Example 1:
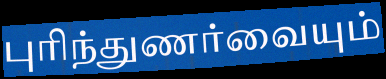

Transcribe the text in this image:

புரிந்துணர்வையும்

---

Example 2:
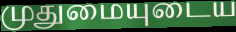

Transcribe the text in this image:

முதுமையுடைய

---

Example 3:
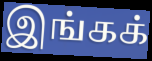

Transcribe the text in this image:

இங்கக்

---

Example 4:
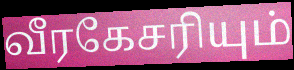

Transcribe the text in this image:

வீரகேசரியும்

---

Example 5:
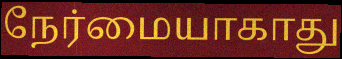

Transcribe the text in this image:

நேர்மையாகாது